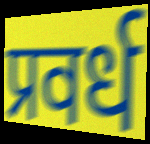
प्रवर्ध